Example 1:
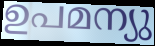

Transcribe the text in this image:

ഉപമന്യു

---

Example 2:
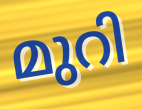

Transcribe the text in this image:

മുറി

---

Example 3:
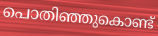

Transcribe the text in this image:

പൊതിഞ്ഞുകൊണ്ട്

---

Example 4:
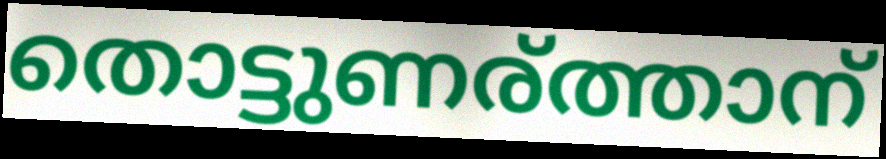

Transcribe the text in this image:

തൊട്ടുണര്ത്താന്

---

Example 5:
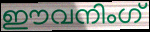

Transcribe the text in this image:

ഈവനിംഗ്